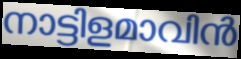
നാട്ടിളമാവിൻ